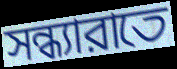
সন্ধ্যারাতে